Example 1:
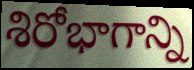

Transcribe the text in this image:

శిరోభాగాన్ని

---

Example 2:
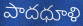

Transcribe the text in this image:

పాదధూళి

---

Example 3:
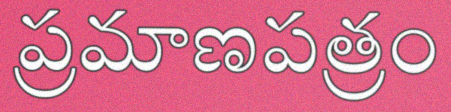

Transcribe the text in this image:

ప్రమాణపత్రం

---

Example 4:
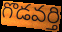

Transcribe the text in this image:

గొడవర్తి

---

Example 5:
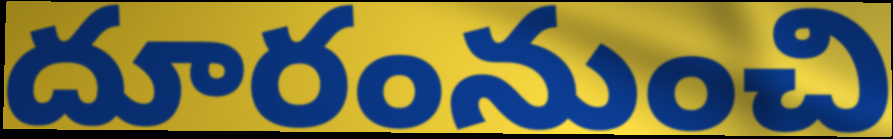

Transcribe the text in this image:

దూరంనుంచి